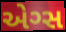
એગ્સ